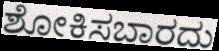
ಶೋಕಿಸಬಾರದು